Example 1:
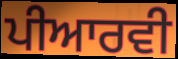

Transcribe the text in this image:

ਪੀਆਰਵੀ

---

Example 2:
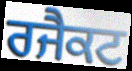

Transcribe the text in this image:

ਰਜੈਕਟ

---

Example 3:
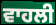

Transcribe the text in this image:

ਵਾਹਲੀ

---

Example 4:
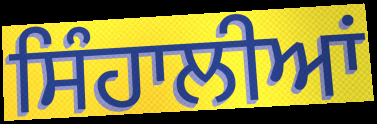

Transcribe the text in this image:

ਸਿੰਹਾਲੀਆਂ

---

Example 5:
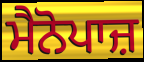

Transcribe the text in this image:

ਮੈਨੋਪਾਜ਼